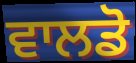
ਵਾਲਡੋ